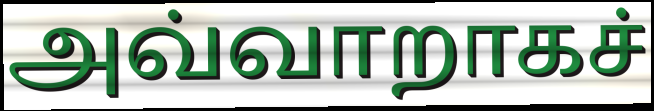
அவ்வாறாகச்